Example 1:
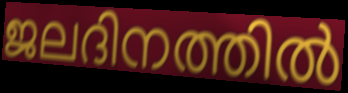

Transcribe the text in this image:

ജലദിനത്തിൽ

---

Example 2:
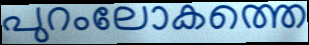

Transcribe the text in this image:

പുറംലോകത്തെ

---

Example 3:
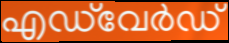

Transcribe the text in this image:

എഡ്‌വേർഡ്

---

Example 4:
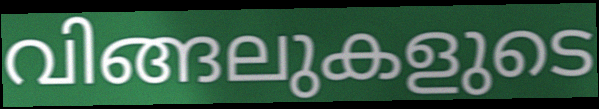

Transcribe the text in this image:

വിങ്ങലുകളുടെ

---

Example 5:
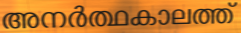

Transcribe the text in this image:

അനർത്ഥകാലത്ത്